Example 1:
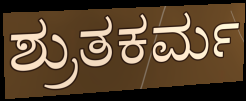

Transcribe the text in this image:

ಶ್ರುತಕರ್ಮ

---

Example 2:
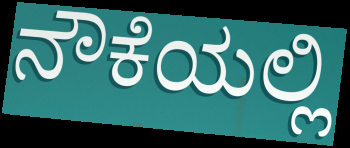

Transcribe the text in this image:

ನೌಕೆಯಲ್ಲಿ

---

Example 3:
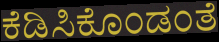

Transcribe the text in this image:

ಕೆಡಿಸಿಕೊಂಡಂತೆ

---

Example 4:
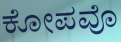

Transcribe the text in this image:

ಕೋಪವೊ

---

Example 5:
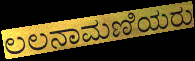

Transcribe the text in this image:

ಲಲನಾಮಣಿಯರು